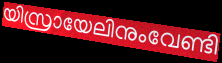
യിസ്രായേലിനുംവേണ്ടി